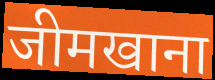
जीमखाना